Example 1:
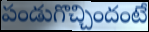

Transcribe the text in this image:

పండుగొచ్చిందంటే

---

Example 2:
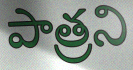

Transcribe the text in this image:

పాత్రని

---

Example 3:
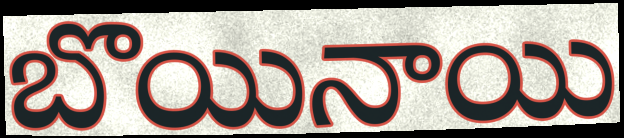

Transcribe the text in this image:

బొయినాయి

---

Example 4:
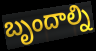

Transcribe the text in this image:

బృందాల్ని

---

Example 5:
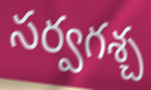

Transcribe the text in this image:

సర్వగశ్చ